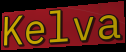
Kelva